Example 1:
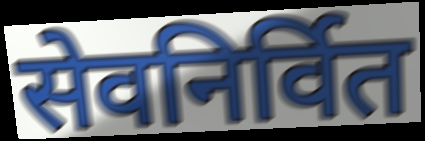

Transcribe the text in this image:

सेवनिर्वित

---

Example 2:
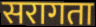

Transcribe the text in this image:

सरागता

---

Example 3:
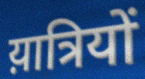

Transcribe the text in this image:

य़ात्रियों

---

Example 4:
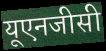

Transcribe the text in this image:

यूएनजीसी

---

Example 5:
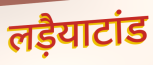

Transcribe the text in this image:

लड़ैयाटांड